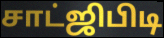
சாட்ஜிபிடி